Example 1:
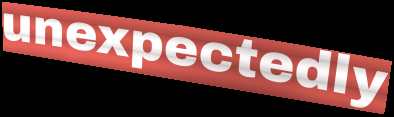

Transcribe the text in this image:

unexpectedly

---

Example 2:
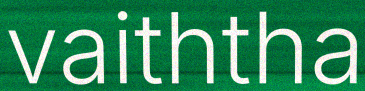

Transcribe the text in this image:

vaiththa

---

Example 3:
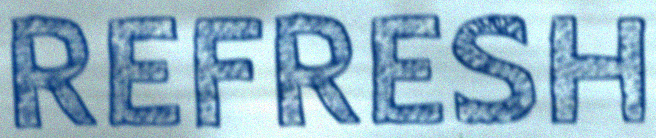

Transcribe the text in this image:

REFRESH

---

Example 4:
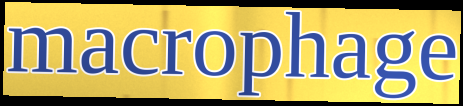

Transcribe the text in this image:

macrophage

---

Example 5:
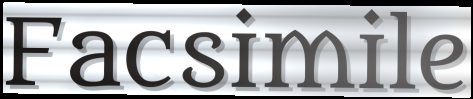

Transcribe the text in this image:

Facsimile